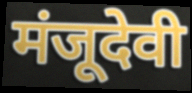
मंजूदेवी